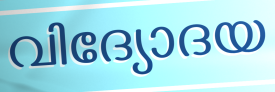
വിദ്യോദയ